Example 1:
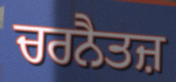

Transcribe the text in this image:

ਚਰਨੈਤਜ਼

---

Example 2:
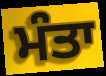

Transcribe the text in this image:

ਮੰਤਾ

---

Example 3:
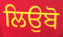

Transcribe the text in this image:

ਲਿਉਬੋ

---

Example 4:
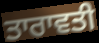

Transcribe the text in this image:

ਤਾਰਾਵਤੀ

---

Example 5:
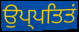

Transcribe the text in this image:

ਉਪ੍ਪਤਿਤਂ